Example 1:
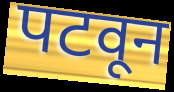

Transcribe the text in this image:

पटवून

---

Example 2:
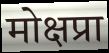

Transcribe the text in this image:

मोक्षप्रा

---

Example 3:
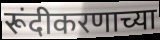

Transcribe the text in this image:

रूंदीकरणाच्या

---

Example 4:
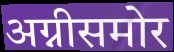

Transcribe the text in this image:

अग्नीसमोर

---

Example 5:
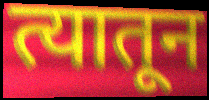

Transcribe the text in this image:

त्‍यातून